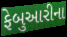
ફેબુઆરીના